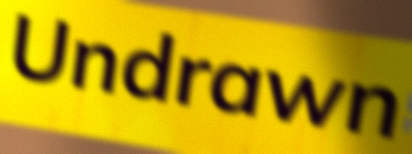
Undrawn